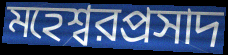
মহেশ্বরপ্রসাদ